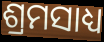
ଶ୍ରମସାଧ୍ୟ